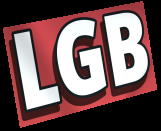
LGB